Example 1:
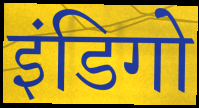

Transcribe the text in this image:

इंडिगो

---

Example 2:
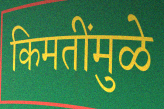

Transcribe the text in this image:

किमतींमुळे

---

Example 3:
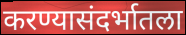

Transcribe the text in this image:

करण्यासंदर्भातला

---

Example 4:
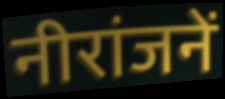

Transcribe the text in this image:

नीरांजनें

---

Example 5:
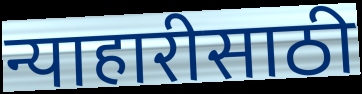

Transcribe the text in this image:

न्याहारीसाठी